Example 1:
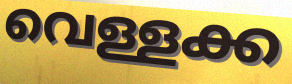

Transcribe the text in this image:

വെള്ളക്ക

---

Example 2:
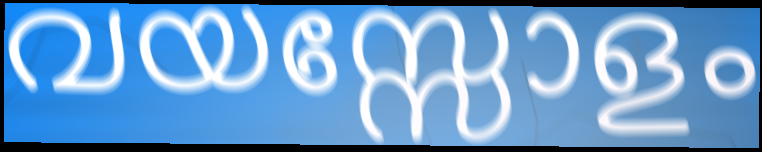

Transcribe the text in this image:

വയസ്സോളം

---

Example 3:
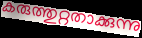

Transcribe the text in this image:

കരുത്തുറ്റതാക്കുന്നു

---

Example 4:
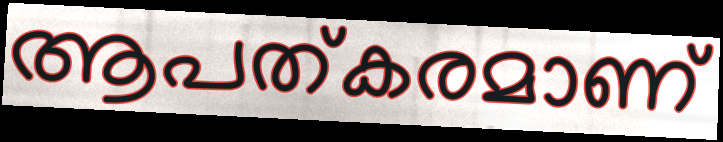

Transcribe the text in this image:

ആപത്കരമാണ്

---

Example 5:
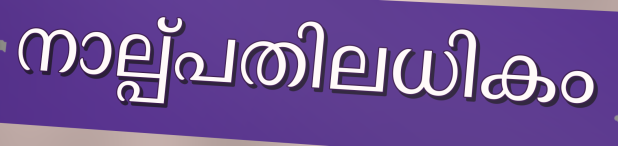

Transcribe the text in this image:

നാല്പ്പതിലധികം